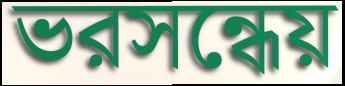
ভরসন্ধেয়